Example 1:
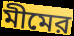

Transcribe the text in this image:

মীমের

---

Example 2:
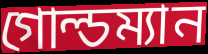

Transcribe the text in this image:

গোল্ডম্যান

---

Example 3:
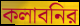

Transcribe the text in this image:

কলাবনির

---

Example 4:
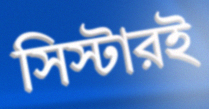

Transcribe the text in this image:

সিস্টারই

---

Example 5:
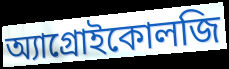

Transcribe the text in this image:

অ্যাগ্রোইকোলজি